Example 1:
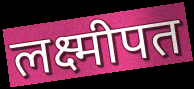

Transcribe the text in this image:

लक्ष्मीपत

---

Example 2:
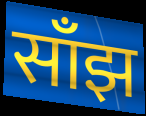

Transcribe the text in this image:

साँझ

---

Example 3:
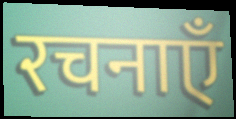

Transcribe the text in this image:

रचनाएँ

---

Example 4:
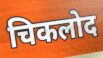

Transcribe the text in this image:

चिकलोद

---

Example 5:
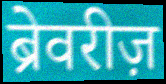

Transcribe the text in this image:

ब्रेवरीज़